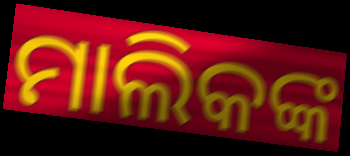
ମାଲିକଙ୍କ